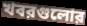
খবরগুলোর